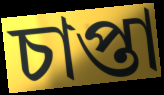
চাপ্তা